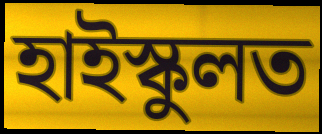
হাইস্কুলত